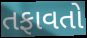
તફાવતો